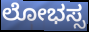
ಲೋಭಸ್ಸ